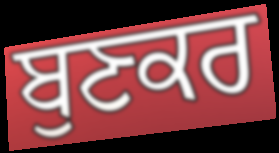
ਬੁਣਕਰ